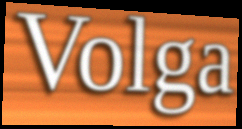
Volga